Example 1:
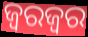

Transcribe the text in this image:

ଜ୍ୱରଜ୍ୱର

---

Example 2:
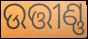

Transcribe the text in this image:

ଉତ୍ତୀଣ୍ଣ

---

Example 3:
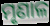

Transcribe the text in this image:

ମୃଣାଳ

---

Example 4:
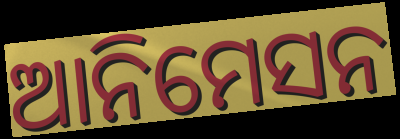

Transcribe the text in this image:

ଆନିମେସନ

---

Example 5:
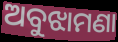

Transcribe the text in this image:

ଅବୁଝାମଣା